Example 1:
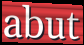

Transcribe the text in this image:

abut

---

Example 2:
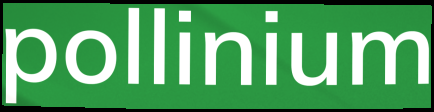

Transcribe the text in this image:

pollinium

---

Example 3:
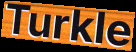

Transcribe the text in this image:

Turkle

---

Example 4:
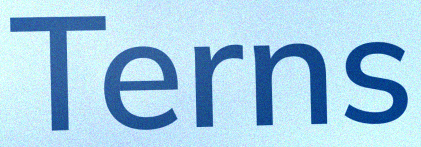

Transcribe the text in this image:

Terns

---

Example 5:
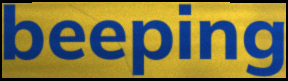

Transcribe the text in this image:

beeping